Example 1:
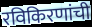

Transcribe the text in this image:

रविकिरणांची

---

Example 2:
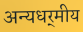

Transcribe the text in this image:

अन्यधर्मीय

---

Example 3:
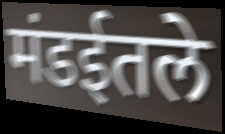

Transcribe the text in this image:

मंडईतले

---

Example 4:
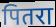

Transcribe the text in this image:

पितरा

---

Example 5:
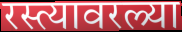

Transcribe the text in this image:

रस्त्यावरल्या